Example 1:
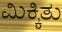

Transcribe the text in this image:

ಮಿಕ್ಕಿತು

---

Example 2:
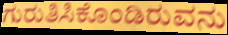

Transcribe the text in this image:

ಗುರುತಿಸಿಕೊಂಡಿರುವನು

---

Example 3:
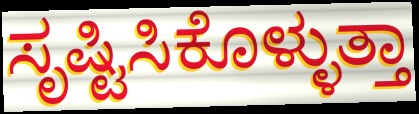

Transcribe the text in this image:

ಸೃಷ್ಟಿಸಿಕೊಳ್ಳುತ್ತಾ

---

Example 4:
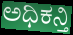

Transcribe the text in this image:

ಅಧಿಕನ್ತಿ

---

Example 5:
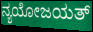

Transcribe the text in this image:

ನ್ಯಯೋಜಯತ್